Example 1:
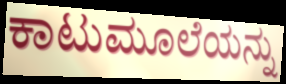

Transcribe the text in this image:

ಕಾಟುಮೂಲೆಯನ್ನು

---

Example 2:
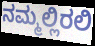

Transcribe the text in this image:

ನಮ್ಮಲ್ಲಿರಲಿ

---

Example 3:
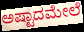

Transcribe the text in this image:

ಅಷ್ಟಾದಮೇಲೆ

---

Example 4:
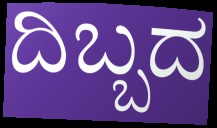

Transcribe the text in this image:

ದಿಬ್ಬದ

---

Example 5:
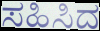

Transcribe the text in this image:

ಸಹಿಸಿದ